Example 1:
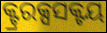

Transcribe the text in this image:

କ୍ଟ୍ରରକ୍ସସକ୍ଟୟ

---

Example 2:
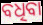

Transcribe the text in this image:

ବଧିବା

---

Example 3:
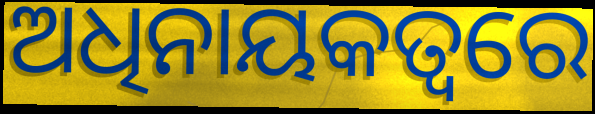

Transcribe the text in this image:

ଅଧିନାୟକତ୍ବରେ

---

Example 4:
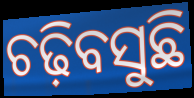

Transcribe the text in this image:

ଚଢ଼ିବସୁଛି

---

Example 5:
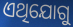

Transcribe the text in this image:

ଏଥିଯୋଗୁ